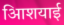
आिशयाई